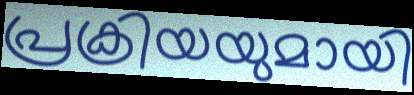
പ്രക്രിയയുമായി